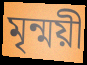
মৃন্ময়ী